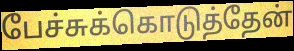
பேச்சுக்கொடுத்தேன்